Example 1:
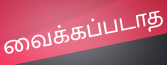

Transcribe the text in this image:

வைக்கப்படாத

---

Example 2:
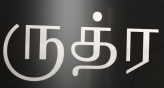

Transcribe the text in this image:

ருத்ர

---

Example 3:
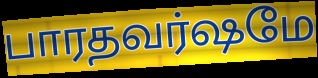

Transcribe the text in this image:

பாரதவர்ஷமே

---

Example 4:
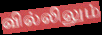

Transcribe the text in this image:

வில்லிலும்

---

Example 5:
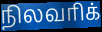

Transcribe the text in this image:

நிலவரிக்